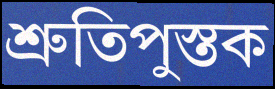
শ্রুতিপুস্তক